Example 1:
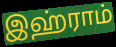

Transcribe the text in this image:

இஹ்ராம்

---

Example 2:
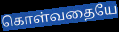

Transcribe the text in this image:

கொள்வதையே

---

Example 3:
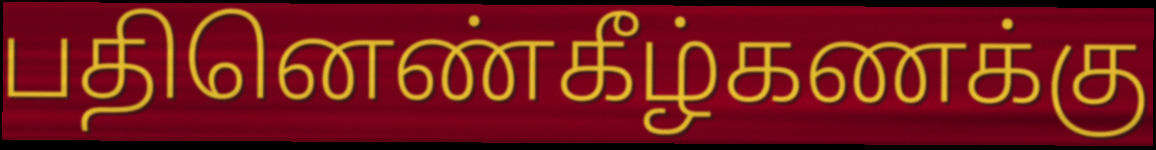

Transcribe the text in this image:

பதினெண்கீழ்கணக்கு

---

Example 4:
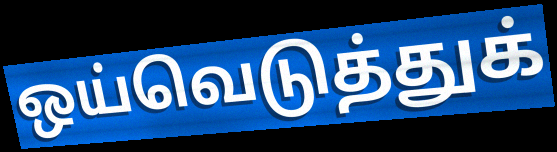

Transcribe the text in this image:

ஒய்வெடுத்துக்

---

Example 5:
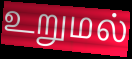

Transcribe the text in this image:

உறுமல்